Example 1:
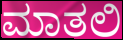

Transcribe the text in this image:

ಮಾತಲಿ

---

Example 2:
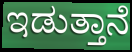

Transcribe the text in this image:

ಇಡುತ್ತಾನೆ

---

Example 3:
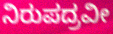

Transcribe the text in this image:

ನಿರುಪದ್ರವೀ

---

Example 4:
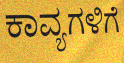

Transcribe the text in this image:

ಕಾವ್ಯಗಳಿಗೆ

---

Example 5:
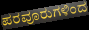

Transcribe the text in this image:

ಪರವೂರುಗಳಿಂದ